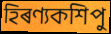
হিৰণ্যকশিপু